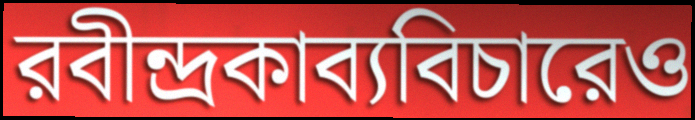
রবীন্দ্রকাব্যবিচারেও